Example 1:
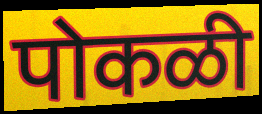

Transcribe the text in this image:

पोकळी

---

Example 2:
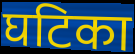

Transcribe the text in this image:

घटिका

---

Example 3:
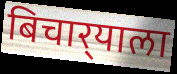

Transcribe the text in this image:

बिचार्‍याला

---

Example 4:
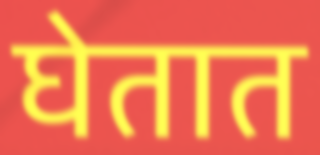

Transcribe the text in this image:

घेतात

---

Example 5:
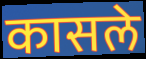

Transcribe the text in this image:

कासले